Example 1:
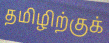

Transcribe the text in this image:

தமிழிற்குக்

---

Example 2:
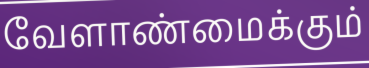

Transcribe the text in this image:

வேளாண்மைக்கும்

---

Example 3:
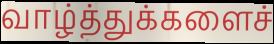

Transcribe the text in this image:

வாழ்த்துக்களைச்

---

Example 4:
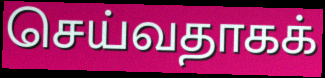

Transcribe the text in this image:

செய்வதாகக்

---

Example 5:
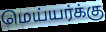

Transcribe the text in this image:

மெய்யர்க்கு